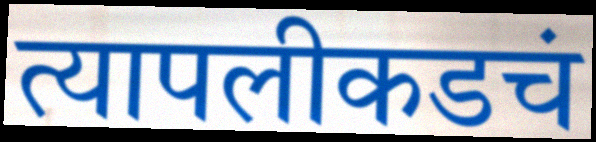
त्यापलीकडचं